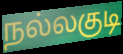
நல்லகுடி